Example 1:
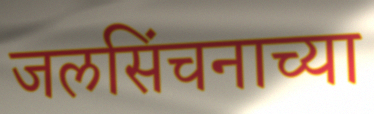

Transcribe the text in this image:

जलसिंचनाच्या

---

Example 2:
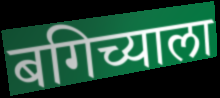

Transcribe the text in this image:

बगिच्याला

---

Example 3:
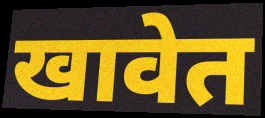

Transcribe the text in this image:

खावेत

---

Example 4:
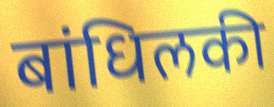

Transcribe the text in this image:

बांधिलकी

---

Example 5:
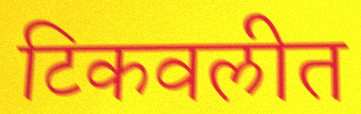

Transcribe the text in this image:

टिकवलीत